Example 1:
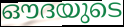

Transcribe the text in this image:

ഔദയുടെ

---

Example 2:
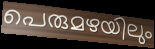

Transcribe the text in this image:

പെരുമഴയിലും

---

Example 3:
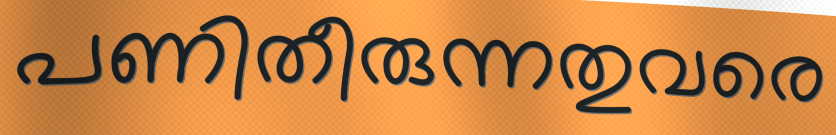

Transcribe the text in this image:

പണിതീരുന്നതുവരെ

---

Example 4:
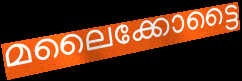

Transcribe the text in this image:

മലൈക്കോട്ടൈ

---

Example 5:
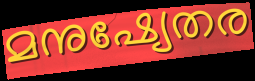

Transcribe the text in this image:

മനുഷ്യേതര